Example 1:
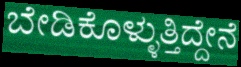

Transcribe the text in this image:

ಬೇಡಿಕೊಳ್ಳುತ್ತಿದ್ದೇನೆ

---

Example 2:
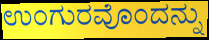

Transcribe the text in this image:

ಉಂಗುರವೊಂದನ್ನು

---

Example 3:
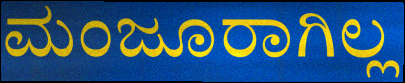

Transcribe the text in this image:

ಮಂಜೂರಾಗಿಲ್ಲ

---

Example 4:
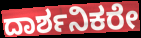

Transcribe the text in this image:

ದಾರ್ಶನಿಕರೇ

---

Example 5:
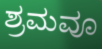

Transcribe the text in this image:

ಶ್ರಮವೂ